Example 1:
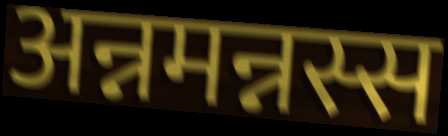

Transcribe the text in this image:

अन्नमन्नस्स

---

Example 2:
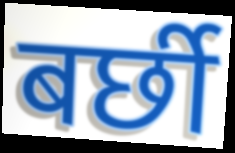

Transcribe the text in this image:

बर्छी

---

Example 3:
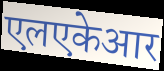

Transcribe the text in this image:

एलएकेआर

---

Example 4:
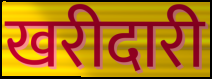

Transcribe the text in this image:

खरीदारी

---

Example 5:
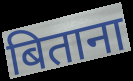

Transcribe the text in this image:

बिताना